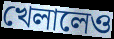
খেলালেও